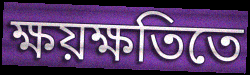
ক্ষয়ক্ষতিতে